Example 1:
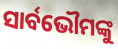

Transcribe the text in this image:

ସାର୍ବଭୌମଙ୍କୁ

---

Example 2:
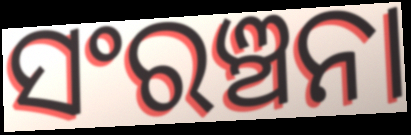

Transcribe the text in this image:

ସଂରଞ୍ଚନା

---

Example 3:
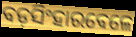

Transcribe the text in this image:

ବଡ଼ସିଂହାରବେଳେ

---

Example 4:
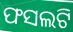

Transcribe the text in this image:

ଫସଲଟି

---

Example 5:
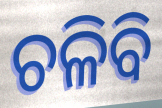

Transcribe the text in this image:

ଚଳିବି